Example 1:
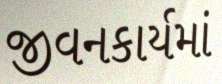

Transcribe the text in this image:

જીવનકાર્યમાં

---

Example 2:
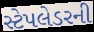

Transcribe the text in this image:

સ્ટેપલેડરની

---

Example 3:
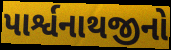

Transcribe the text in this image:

પાર્શ્વનાથજીનો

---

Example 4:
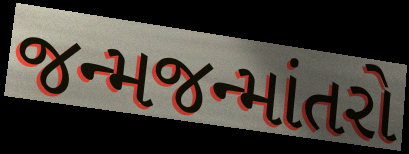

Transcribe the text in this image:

જન્મજન્માંતરો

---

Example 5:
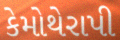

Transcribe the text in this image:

કેમોથેરાપી